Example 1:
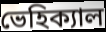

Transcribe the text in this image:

ভেহিক্যাল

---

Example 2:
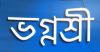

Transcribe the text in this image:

ভগ্নশ্রী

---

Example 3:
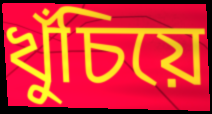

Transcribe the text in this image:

খুঁচিয়ে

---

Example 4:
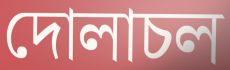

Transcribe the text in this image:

দোলাচল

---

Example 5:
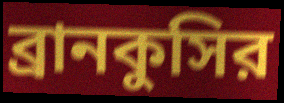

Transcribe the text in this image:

ব্রানকুসির